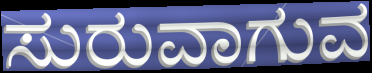
ಸುರುವಾಗುವ